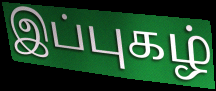
இப்புகழ்